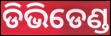
ଡିଭିଡେଣ୍ଡ